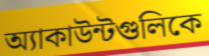
অ্যাকাউন্টগুলিকে